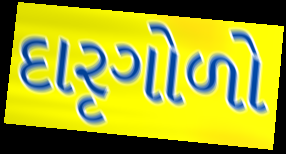
દારૃગોળો